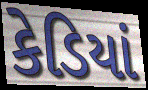
કેડિયાં